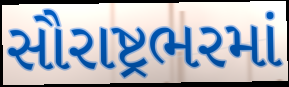
સૌરાષ્ટ્રભરમાં